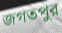
জগতপুর